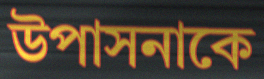
উপাসনাকে